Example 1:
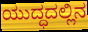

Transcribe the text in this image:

ಯುದ್ಧದಲ್ಲಿನ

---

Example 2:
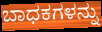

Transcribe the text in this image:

ಬಾಧಕಗಳನ್ನು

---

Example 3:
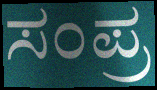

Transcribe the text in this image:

ಸಂಪ್ರ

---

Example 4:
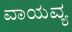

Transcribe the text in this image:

ವಾಯವ್ಯ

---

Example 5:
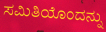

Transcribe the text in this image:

ಸಮಿತಿಯೊಂದನ್ನು